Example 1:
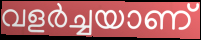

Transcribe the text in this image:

വളർച്ചയാണ്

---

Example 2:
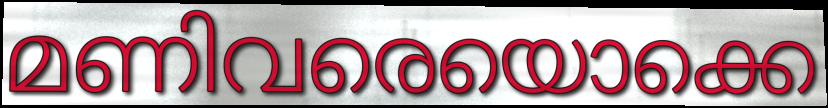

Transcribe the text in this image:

മണിവരെയൊക്കെ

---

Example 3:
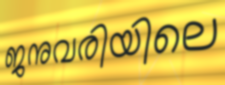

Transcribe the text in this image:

ജനുവരിയിലെ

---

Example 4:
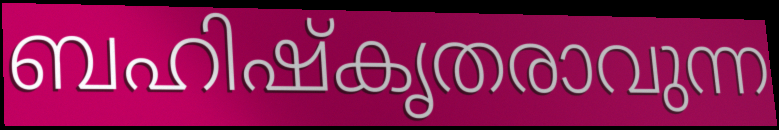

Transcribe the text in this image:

ബഹിഷ്കൃതരാവുന്ന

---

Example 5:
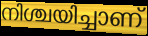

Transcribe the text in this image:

നിശ്ചയിച്ചാണ്